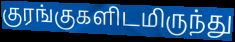
குரங்குகளிடமிருந்து